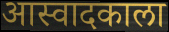
आस्वादकाला